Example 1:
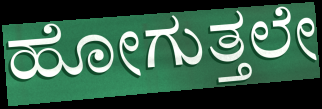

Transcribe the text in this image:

ಹೋಗುತ್ತಲೇ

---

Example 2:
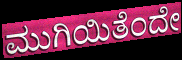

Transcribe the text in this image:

ಮುಗಿಯಿತೆಂದೇ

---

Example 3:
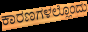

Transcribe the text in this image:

ಕಾರಣಗಳಲ್ಲೊಂದು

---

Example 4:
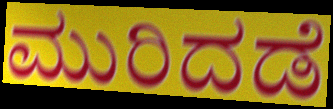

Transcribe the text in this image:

ಮುರಿದಡೆ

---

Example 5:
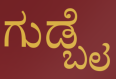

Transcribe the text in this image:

ಗುಡ್ಬೈ